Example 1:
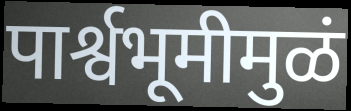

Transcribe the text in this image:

पार्श्वभूमीमुळं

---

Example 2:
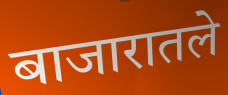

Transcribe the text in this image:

बाजारातले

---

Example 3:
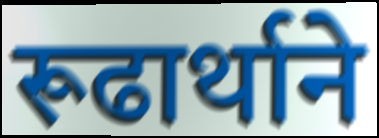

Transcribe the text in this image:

रूढार्थाने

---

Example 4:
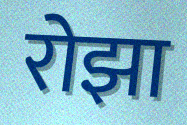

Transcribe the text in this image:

रोझा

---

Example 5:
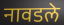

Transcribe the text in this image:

नावडले